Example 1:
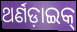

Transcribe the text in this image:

ଥର୍ଣଡ଼ାଇକ୍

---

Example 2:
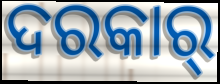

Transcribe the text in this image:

ଦରକାର୍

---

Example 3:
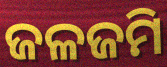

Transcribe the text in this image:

ଜଳଜମି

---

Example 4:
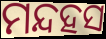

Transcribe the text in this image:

ମନ୍ଦହସ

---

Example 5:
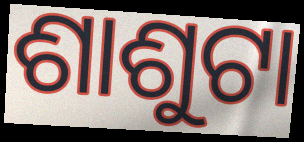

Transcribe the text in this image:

ଶାଶୁଟା